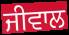
ਜੀਵਾਲ